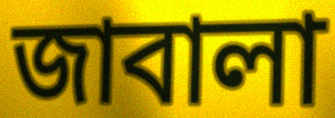
জাবালা